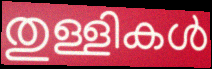
തുള്ളികൾ